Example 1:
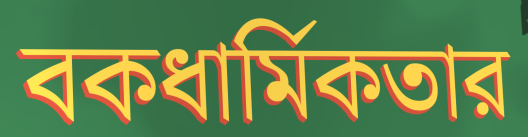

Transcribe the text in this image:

বকধার্মিকতার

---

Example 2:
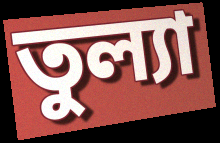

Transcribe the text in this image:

তুল্যা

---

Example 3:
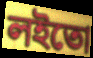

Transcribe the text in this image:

লইতো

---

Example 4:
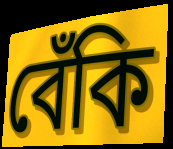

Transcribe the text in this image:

বেঁকি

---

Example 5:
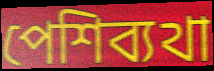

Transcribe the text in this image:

পেশিব্যথা